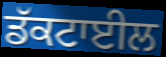
ਡੱਕਟਾਈਲ